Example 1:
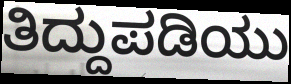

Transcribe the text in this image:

ತಿದ್ದುಪಡಿಯು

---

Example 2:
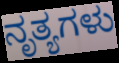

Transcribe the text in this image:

ನೃತ್ಯಗಳು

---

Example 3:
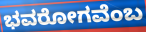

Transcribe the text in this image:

ಭವರೋಗವೆಂಬ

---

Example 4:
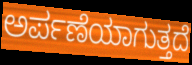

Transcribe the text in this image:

ಅರ್ಪಣೆಯಾಗುತ್ತದೆ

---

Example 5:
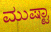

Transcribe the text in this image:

ಮುಷ್ಟಾ